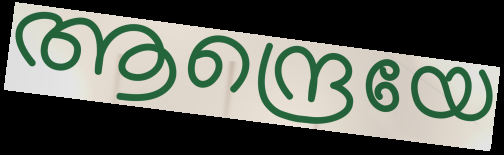
ആന്ദ്രെയേ